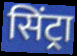
सिंट्रा